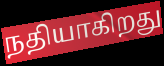
நதியாகிறது